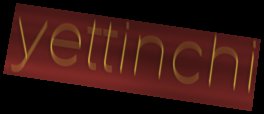
yettinchi